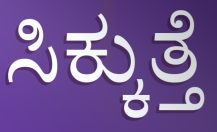
ಸಿಕ್ಕುತ್ತೆ